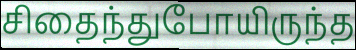
சிதைந்துபோயிருந்த